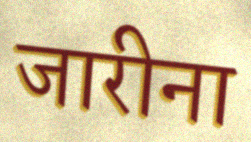
जारीना